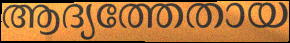
ആദ്യത്തേതായ